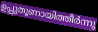
ഉപ്പുതൂണായിത്തീർന്നു